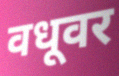
वधूवर